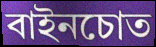
বাইনচোত